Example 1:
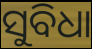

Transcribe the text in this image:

ସୁବିଧା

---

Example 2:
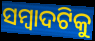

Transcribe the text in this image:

ସମ୍ୱାଦଟିକୁ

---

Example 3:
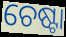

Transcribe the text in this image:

ଚେଷ୍ଟା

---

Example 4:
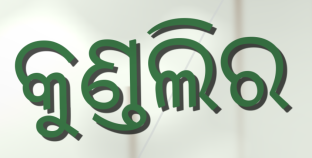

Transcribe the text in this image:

କୁଣ୍ଡଲିର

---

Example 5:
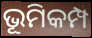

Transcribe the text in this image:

ଭୂମିକମ୍ପ